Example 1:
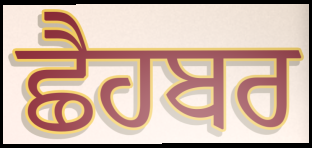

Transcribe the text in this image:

ਛੈਹਬਰ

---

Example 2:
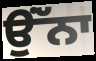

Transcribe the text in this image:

ਉਂੱਨਾ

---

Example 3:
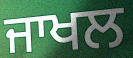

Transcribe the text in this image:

ਜਾਖਲ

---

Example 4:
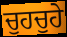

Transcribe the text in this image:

ਚੁਹਚੁਹੇ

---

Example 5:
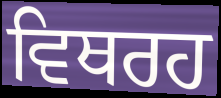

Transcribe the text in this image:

ਵਿਥਰਹ